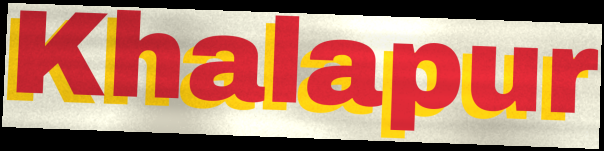
Khalapur